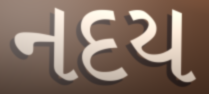
નદય